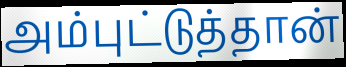
அம்புட்டுத்தான்